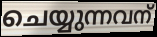
ചെയ്യുന്നവന്